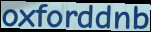
oxforddnb